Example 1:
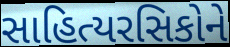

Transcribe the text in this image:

સાહિત્યરસિકોને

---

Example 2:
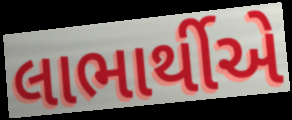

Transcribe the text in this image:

લાભાર્થીએ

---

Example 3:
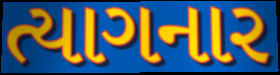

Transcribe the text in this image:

ત્યાગનાર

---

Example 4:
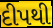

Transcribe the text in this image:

દીપથી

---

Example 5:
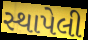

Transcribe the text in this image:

સ્‍થાપેલી